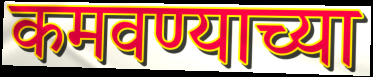
कमवण्याच्या